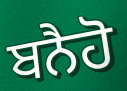
ਬਨੈਹੋ